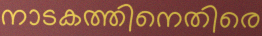
നാടകത്തിനെതിരെ